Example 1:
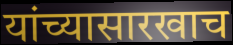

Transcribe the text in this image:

यांच्यासारखाच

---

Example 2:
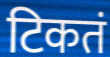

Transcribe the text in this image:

टिकतं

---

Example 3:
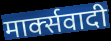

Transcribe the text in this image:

मार्क्‍सवादी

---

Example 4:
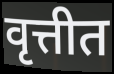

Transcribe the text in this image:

वृत्तीत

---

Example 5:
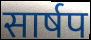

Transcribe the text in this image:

सार्षप